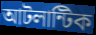
আটলান্টিক